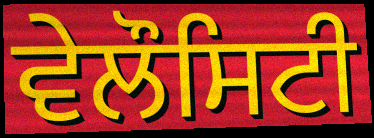
ਵੇਲੌਸਿਟੀ